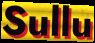
Sullu